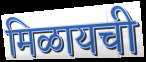
मिळायची